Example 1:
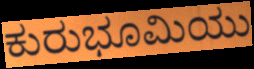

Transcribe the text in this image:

ಕುರುಭೂಮಿಯು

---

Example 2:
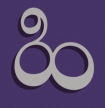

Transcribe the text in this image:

ಹಿ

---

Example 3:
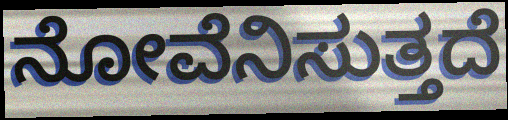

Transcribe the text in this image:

ನೋವೆನಿಸುತ್ತದೆ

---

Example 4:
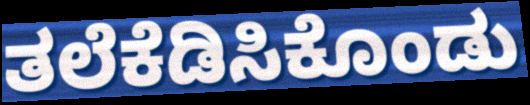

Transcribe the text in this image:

ತಲೆಕೆಡಿಸಿಕೊಂಡು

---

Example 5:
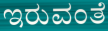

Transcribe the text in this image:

ಇರುವಂತೆ